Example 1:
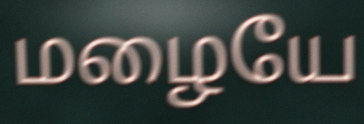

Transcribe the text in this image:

மழையே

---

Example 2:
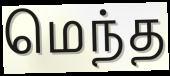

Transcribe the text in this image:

மெந்த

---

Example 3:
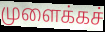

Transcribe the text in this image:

முளைக்கச்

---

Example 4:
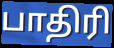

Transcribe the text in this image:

பாதிரி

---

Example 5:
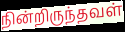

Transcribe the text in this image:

நின்றிருந்தவள்